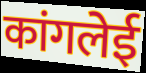
कांगलेई